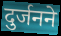
दुर्जनने